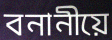
বনানীয়ে